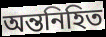
অন্তনিহিত